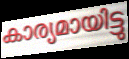
കാര്യമായിട്ടു